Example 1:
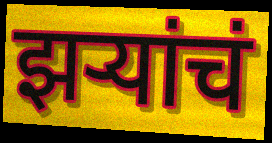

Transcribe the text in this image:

झर्‍यांचं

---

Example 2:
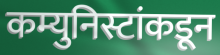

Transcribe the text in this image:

कम्युनिस्टांकडून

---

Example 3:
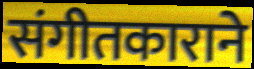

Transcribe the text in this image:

संगीतकाराने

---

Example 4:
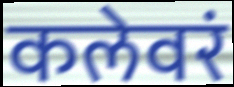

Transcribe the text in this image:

कलेवरं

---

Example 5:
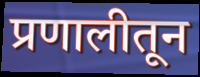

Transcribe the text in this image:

प्रणालीतून